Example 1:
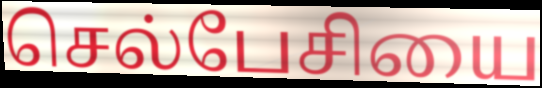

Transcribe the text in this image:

செல்பேசியை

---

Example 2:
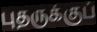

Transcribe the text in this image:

புதருக்குப்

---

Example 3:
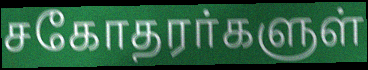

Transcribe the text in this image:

சகோதரர்களுள்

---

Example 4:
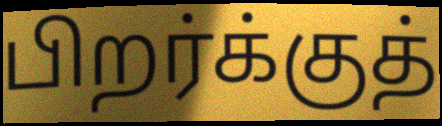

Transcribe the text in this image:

பிறர்க்குத்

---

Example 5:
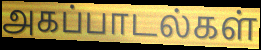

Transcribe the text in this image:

அகப்பாடல்கள்